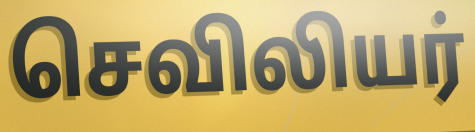
செவிலியர்